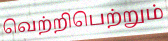
வெற்றிபெற்றும்